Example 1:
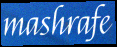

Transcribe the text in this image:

mashrafe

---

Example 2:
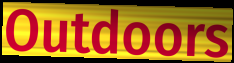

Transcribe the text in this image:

Outdoors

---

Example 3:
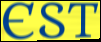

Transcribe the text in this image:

EST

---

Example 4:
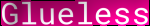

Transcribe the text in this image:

Glueless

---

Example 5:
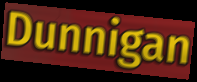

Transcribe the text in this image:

Dunnigan